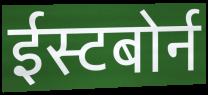
ईस्टबोर्न